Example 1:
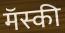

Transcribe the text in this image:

मॅस्की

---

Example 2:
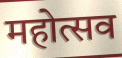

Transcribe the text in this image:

महोत्सव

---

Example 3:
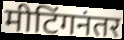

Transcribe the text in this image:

मीटिंगनंतर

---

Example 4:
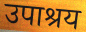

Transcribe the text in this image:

उपाश्रय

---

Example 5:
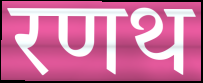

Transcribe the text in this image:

रणथ